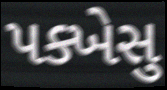
પક્ખેસુ